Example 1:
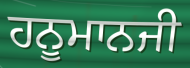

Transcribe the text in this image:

ਹਨੂਮਾਨਜੀ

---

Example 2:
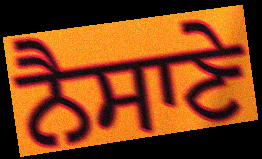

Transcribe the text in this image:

ਨੈਸਾਣੇ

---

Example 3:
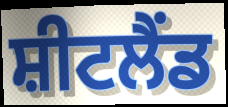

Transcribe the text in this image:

ਸ਼ੀਟਲੈਂਡ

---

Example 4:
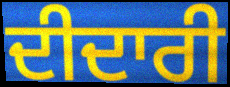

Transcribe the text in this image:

ਦੀਦਾਰੀ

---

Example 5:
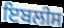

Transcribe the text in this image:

ਇਬਲੀਸ